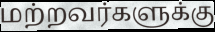
மற்றவர்களுக்கு